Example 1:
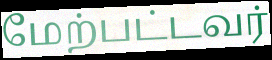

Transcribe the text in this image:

மேற்பட்டவர்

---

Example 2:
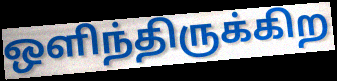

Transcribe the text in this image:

ஒளிந்திருக்கிற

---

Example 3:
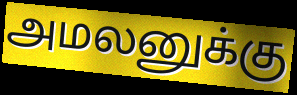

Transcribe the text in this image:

அமலனுக்கு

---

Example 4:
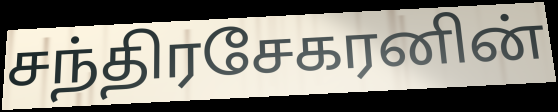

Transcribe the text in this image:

சந்திரசேகரனின்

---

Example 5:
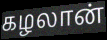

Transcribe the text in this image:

கழலான்